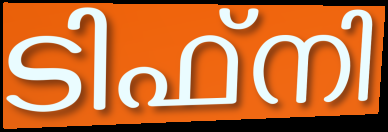
ടിഫ്നി